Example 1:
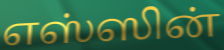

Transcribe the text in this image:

எஸ்ஸின்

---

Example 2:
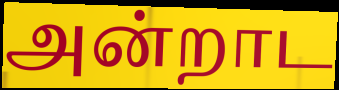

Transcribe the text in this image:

அன்றாட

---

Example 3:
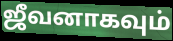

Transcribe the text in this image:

ஜீவனாகவும்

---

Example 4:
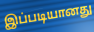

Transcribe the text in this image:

இப்படியானது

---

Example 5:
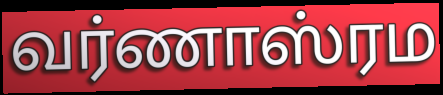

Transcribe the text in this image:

வர்ணாஸ்ரம